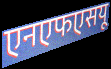
एनएफएसयू